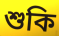
শুকি